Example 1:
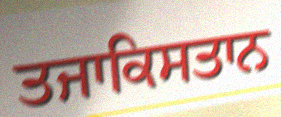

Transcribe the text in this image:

ਤਜਾਕਿਸਤਾਨ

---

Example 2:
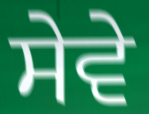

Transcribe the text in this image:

ਸੇਵੇ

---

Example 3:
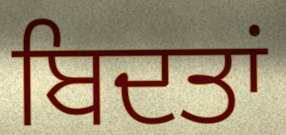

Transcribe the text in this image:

ਬਿਦਤਾਂ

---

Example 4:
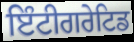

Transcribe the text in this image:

ਇੰਟੀਗਰੇਟਿਡ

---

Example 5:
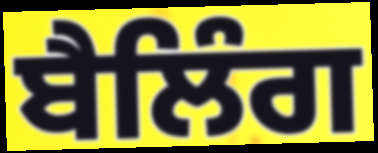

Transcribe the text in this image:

ਬੈਲਿੰਗ